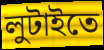
লুটাইতে